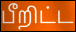
பீறிட்ட